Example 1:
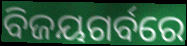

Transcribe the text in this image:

ବିଜୟଗର୍ବରେ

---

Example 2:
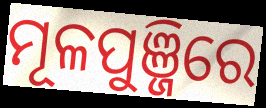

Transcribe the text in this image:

ମୂଳପୁଞ୍ଜିରେ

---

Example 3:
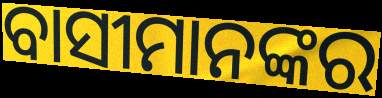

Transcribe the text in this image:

ବାସୀମାନଙ୍କର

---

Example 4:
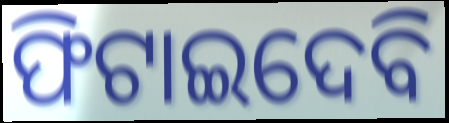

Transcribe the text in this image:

ଫିଟାଇଦେବି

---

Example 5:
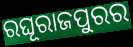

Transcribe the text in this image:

ରଘୂରାଜପୁରର